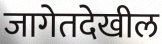
जागेतदेखील